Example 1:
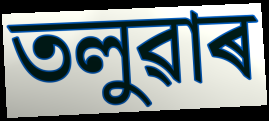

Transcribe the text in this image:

তলুৱাৰ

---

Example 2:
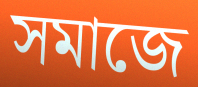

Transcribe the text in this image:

সমাজে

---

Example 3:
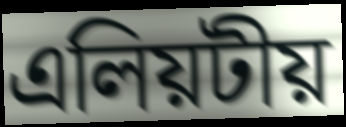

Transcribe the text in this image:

এলিয়টীয়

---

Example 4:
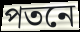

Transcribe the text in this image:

পতনে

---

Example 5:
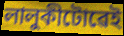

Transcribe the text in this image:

লালুকীটোৱেই